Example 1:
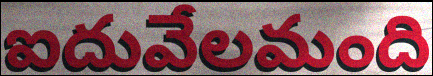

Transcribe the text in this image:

ఐదువేలమంది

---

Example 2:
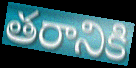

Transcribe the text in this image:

తరానికి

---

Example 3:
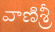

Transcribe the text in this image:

వాణిశ్రీ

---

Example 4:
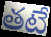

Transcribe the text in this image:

తటే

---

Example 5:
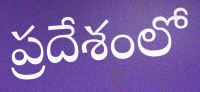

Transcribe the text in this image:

ప్రదేశంలో